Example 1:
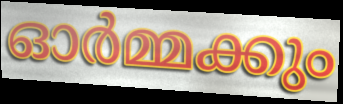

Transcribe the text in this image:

ഓർമ്മക്കും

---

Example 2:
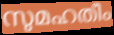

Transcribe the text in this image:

സുമഹതീം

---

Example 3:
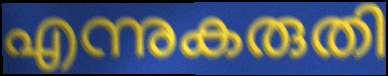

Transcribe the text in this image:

എന്നുകരുതി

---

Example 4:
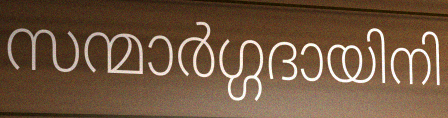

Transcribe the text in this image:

സന്മാർഗ്ഗദായിനി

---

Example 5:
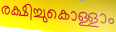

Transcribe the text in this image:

രക്ഷിച്ചുകൊള്ളാം